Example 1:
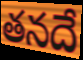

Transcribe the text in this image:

తనదే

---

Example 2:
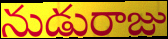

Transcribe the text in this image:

నుడురాజు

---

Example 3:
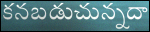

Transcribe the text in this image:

కనబడుచున్నదా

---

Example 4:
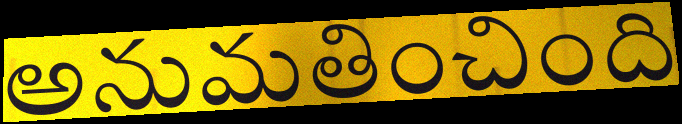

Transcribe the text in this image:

అనుమతించింది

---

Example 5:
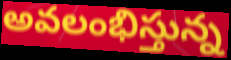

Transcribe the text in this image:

అవలంభిస్తున్న